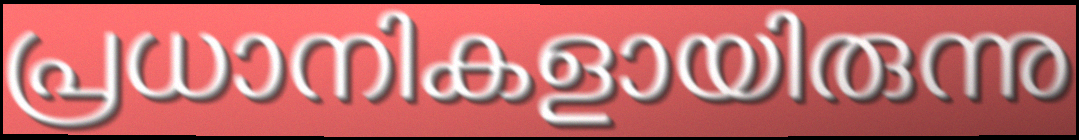
പ്രധാനികളായിരുന്നു